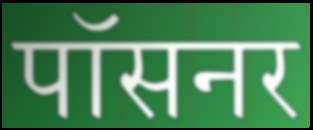
पॉसनर